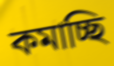
কমাচ্ছি